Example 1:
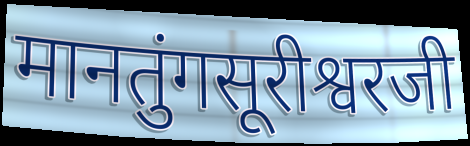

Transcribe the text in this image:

मानतुंगसूरीश्वरजी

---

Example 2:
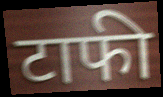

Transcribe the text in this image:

टाफी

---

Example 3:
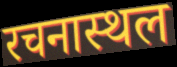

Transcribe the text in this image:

रचनास्थल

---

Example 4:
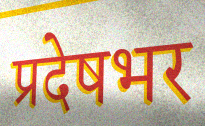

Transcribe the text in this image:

प्रदेषभर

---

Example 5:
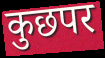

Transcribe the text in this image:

कुछपर